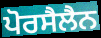
ਪੋਰਸੈਲੈਨ